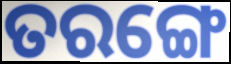
ତରଙ୍ଗେ